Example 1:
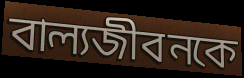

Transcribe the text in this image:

বাল্যজীবনকে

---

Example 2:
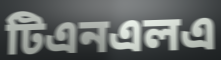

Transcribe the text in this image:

টিএনএলএ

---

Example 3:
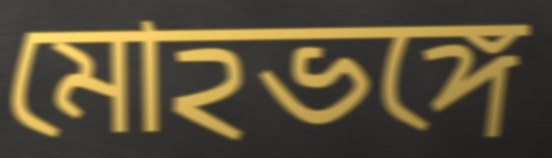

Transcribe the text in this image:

মোহভঙ্গে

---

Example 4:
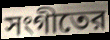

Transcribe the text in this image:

সংগীতের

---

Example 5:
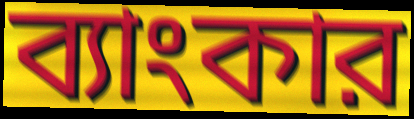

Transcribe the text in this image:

ব্যাংকার